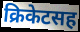
क्रिकेटसह